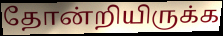
தோன்றியிருக்க